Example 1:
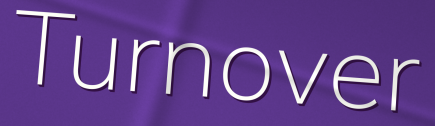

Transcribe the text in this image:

Turnover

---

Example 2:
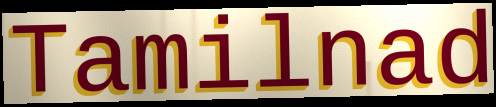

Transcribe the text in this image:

Tamilnad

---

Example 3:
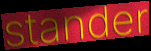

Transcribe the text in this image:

stander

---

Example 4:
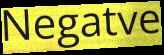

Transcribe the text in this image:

Negatve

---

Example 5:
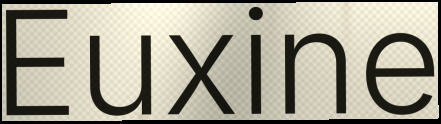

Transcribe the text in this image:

Euxine